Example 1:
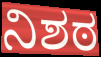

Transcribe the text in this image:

ನಿಶಠ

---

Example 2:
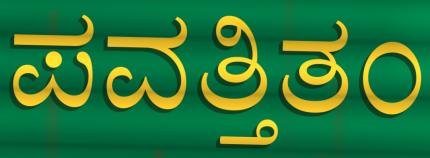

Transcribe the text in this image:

ಪವತ್ತಿತಂ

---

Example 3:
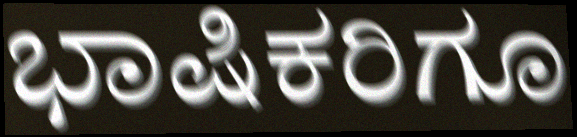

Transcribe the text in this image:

ಭಾಷಿಕರಿಗೂ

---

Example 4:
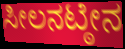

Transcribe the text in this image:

ಸೀಲನಟ್ಠೇನ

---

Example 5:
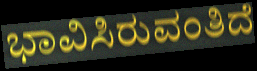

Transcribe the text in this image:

ಭಾವಿಸಿರುವಂತಿದೆ